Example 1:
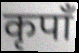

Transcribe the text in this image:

कृपाँ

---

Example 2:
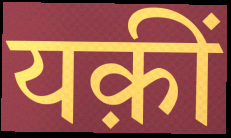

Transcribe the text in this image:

यक़ीं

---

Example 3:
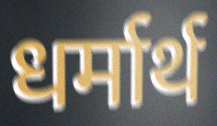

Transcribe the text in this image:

धर्मार्थ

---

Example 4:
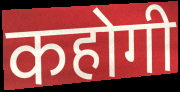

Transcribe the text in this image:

कहोगी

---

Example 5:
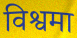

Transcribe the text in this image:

विश्वमा